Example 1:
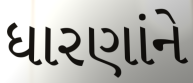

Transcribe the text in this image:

ધારણાંને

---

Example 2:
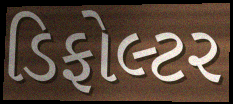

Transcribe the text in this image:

ડિફોલ્ટર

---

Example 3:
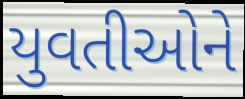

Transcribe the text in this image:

યુવતીઓને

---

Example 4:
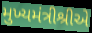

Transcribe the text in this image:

મુખ્યમંત્રીશ્રીએ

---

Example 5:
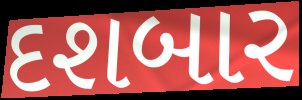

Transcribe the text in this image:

દશબાર